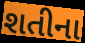
શતીના